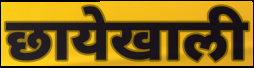
छायेखाली